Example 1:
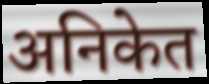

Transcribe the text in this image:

अनिकेत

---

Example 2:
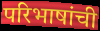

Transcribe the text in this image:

परिभाषांची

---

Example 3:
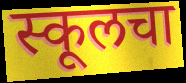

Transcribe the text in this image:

स्कूलचा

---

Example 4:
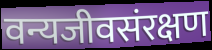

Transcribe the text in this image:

वन्यजीवसंरक्षण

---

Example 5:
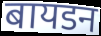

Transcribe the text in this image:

बायडन